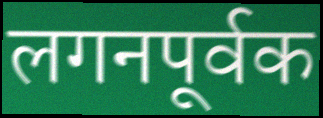
लगनपूर्वक